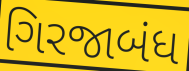
ગિરજાબંધ